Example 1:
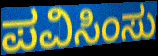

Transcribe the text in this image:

ಪವಿಸಿಂಸು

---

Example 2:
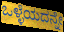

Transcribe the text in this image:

ಒಳ್ಳೆಯದನ್ನೇ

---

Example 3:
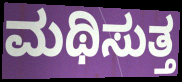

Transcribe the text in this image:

ಮಥಿಸುತ್ತ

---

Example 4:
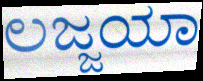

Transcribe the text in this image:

ಲಜ್ಜಯಾ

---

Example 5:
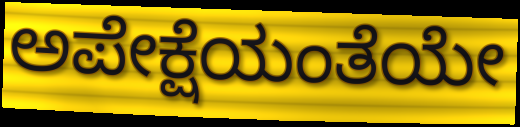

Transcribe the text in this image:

ಅಪೇಕ್ಷೆಯಂತೆಯೇ